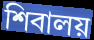
শিবালয়